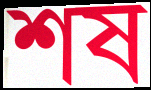
শষ